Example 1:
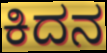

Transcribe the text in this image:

ಕಿದನ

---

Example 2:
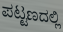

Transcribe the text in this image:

ಪಟ್ಟಣದಲ್ಲಿ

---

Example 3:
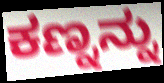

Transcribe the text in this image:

ಕಣ್ನನ್ನು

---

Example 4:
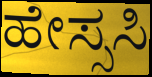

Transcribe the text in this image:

ಹೇಸ್ಸಸಿ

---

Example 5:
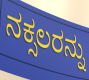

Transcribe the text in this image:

ನಕ್ಸಲರನ್ನು